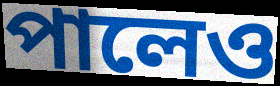
পালেও